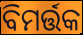
ବିମର୍ତ୍ତକ